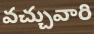
వచ్చువారి